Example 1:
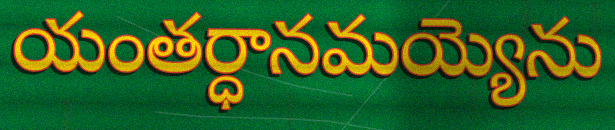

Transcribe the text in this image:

యంతర్ధానమయ్యెను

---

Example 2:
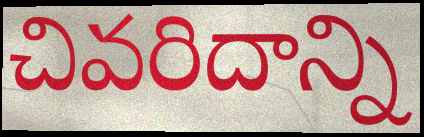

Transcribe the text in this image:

చివరిదాన్ని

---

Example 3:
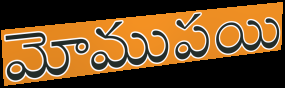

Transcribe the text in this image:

మోముపయి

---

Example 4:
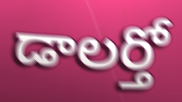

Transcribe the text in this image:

డాలర్తో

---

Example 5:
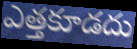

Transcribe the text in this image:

ఎత్తకూడదు